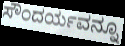
ಸೌಂದರ್ಯವನ್ನೂ